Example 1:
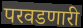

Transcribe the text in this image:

परवडणारी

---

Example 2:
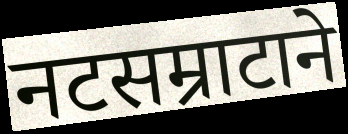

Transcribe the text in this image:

नटसम्राटाने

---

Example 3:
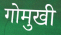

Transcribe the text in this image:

गोमुखी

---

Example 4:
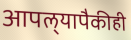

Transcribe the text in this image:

आपल्यापैकीही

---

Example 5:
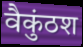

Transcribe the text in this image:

वैकुंठश